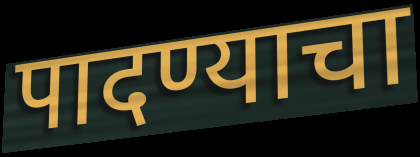
पादण्याचा